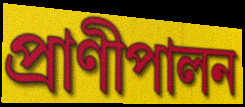
প্রাণীপালন